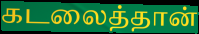
கடலைத்தான்